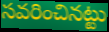
సవరించినట్టు